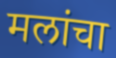
मलांचा